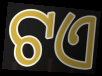
ଟଏ